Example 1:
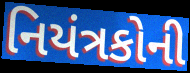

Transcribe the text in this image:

નિયંત્રકોની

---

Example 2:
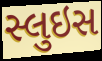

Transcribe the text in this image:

સ્લુઇસ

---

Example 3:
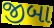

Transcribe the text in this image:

જીબા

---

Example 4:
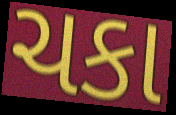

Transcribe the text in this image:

ચકા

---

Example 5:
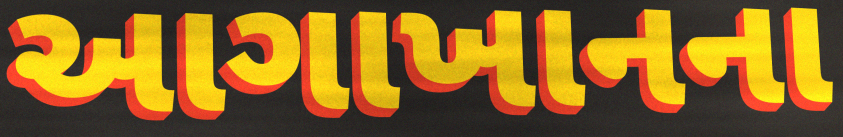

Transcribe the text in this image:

આગાખાનના